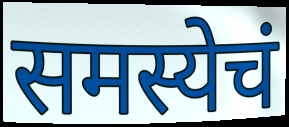
समस्येचं